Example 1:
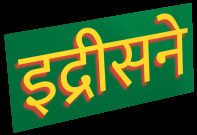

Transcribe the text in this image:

इद्रीसने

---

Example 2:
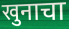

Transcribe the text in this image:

खुनाचा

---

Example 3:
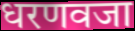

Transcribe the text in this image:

धरणवजा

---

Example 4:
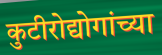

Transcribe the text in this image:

कुटीरोद्योगांच्या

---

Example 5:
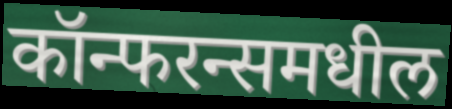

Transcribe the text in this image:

कॉन्फरन्समधील